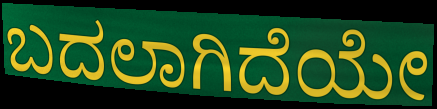
ಬದಲಾಗಿದೆಯೇ